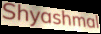
Shyashmal